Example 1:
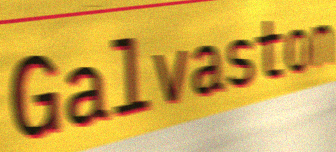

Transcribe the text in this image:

Galvaston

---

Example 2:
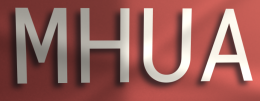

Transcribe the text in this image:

MHUA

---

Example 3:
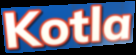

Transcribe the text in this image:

Kotla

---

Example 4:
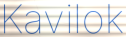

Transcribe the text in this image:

Kavilok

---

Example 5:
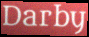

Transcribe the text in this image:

Darby